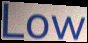
Low